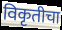
विकृतीचा